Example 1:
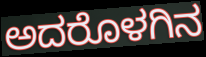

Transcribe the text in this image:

ಅದರೊಳಗಿನ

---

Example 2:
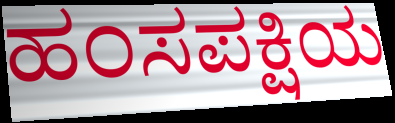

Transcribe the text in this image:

ಹಂಸಪಕ್ಷಿಯ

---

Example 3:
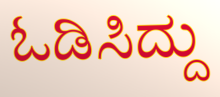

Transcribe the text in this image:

ಓಡಿಸಿದ್ದು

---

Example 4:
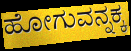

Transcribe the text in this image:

ಹೋಗುವನ್ನಕ್ಕ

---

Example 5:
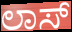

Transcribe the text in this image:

ಲಾಸ್